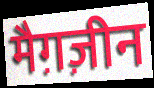
मैग़ज़ीन